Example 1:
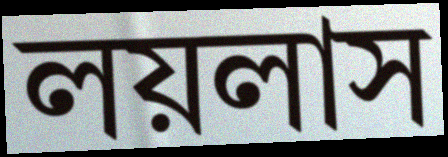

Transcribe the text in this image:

লয়লাস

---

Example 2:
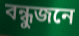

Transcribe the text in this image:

বন্ধুজনে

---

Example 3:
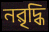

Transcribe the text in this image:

নৱৃদ্ধি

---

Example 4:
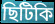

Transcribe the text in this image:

ছিটিকি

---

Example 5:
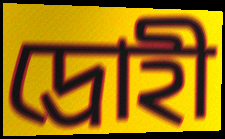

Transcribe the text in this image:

দ্ৰোহী